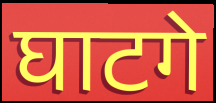
घाटगे